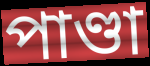
পাণ্ডা